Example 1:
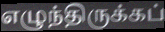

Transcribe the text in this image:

எழுந்திருக்கப்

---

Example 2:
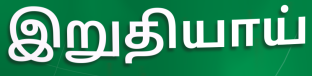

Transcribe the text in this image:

இறுதியாய்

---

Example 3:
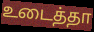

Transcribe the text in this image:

உடைத்தா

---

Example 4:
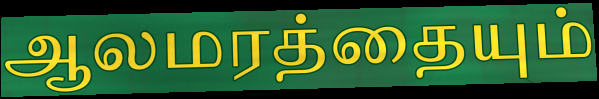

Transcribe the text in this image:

ஆலமரத்தையும்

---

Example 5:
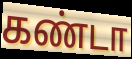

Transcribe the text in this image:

கண்டா